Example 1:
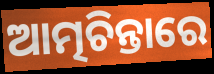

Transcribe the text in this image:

ଆତ୍ମଚିନ୍ତାରେ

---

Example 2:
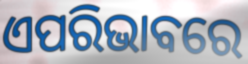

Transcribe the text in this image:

ଏପରିଭାବରେ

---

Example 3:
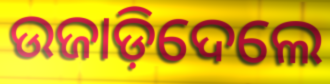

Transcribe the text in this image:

ଉଜାଡ଼ିଦେଲେ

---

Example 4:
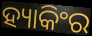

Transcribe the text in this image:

ହ୍ୟାକିଂର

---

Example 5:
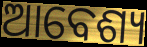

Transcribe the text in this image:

ଆବେଶ୍ୟ